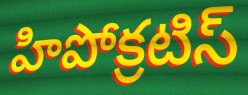
హిపోక్రటిస్